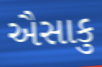
ઐસાકુ